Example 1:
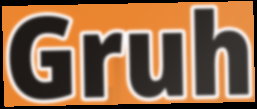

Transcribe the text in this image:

Gruh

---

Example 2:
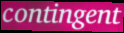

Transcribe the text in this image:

contingent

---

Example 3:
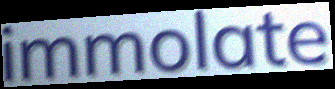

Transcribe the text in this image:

immolate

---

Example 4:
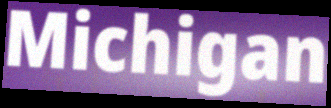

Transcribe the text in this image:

Michigan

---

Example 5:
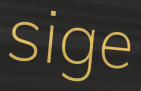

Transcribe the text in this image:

sige